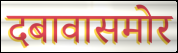
दबावासमोर